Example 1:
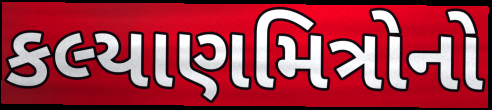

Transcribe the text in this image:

કલ્યાણમિત્રોનો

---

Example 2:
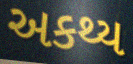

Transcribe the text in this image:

અકથ્ય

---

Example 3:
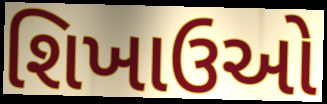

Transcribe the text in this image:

શિખાઉઓ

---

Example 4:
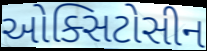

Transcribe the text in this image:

ઓક્સિટોસીન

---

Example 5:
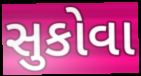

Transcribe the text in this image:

સુકોવા